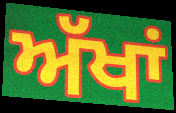
ਅੱਖਾਂ